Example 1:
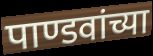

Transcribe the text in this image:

पाण्डवांच्या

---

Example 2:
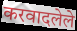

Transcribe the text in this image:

करवादलेले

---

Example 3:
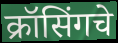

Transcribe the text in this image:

क्रॉसिंगचे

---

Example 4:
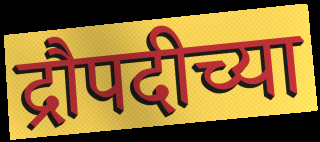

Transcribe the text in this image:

द्रौपदीच्या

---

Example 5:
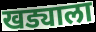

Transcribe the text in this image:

खड्याला